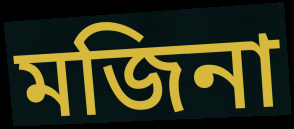
মজিনা